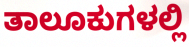
ತಾಲೂಕುಗಳಲ್ಲಿ